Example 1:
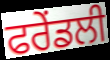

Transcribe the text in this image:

ਫਰੇਂਡਲੀ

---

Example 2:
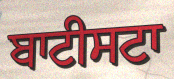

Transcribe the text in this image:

ਬਾਟੀਸਟਾ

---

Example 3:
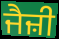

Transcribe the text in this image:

ਜੈਜ਼ੀ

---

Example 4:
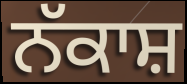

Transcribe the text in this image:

ਨੱਕਾਸ਼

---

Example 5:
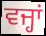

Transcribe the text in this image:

ਵਜ੍ਹਾਂ